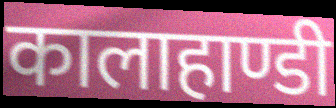
कालाहाण्डी